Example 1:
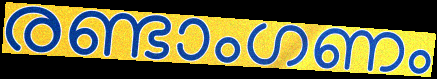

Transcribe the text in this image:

രണ്ടാംഗണം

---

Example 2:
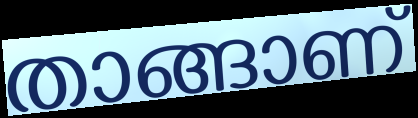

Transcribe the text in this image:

താങ്ങാണ്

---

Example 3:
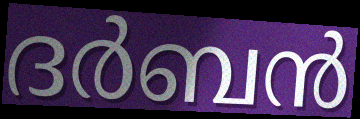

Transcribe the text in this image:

ദർബൻ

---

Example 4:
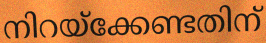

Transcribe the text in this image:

നിറയ്ക്കേണ്ടതിന്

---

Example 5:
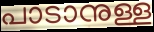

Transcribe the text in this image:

പാടാനുള്ള